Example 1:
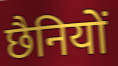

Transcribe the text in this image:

छैनियों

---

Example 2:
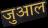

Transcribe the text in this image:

जुआल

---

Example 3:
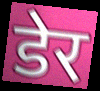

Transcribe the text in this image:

डेर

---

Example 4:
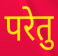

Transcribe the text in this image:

परेतु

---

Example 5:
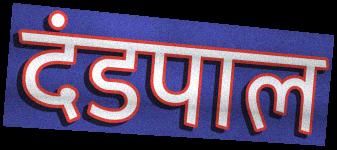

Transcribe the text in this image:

दंडपाल